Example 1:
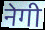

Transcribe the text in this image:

नेगी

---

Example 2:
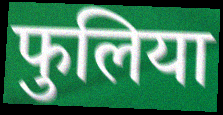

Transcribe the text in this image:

फुलिया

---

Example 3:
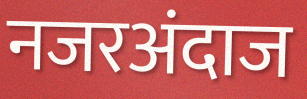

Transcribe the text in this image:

नजरअंदाज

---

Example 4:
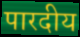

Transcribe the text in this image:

पारदीय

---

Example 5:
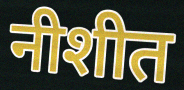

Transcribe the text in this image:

नीशीत